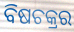
ବିଷଚକ୍ରର